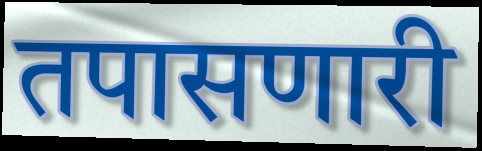
तपासणारी